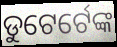
ଡୁଟେର୍ଟେଙ୍କ